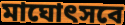
মাঘোৎসবে